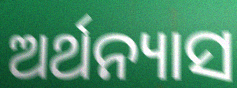
ଅର୍ଥନ୍ୟାସ